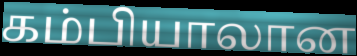
கம்பியாலான